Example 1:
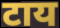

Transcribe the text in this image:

टाय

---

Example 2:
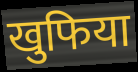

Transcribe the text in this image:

खुफिया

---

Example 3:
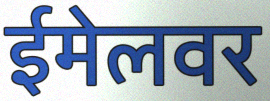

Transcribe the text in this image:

ईमेलवर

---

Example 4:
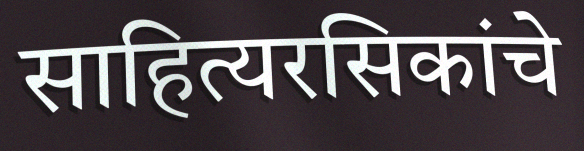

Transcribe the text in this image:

साहित्यरसिकांचे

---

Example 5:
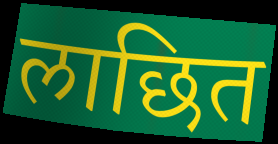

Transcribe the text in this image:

लाछित